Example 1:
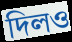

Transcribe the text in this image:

দিলও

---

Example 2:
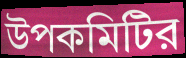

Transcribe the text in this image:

উপকমিটির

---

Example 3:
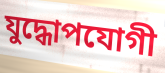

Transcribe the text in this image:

যুদ্ধোপযোগী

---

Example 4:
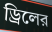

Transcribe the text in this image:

ড্রিলের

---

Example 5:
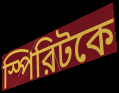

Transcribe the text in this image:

স্পিরিটকে